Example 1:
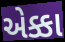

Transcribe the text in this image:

એક્કા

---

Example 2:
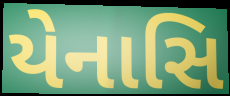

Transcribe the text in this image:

યેનાસિ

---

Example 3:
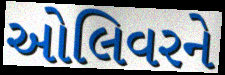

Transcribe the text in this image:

ઓલિવરને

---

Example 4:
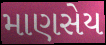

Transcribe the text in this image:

માણસેય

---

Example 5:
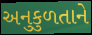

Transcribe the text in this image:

અનુકુળતાને